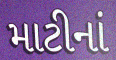
માટીનાં